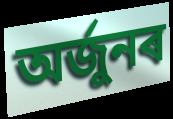
অৰ্জুনৰ